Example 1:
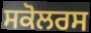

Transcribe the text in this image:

ਸਕੋਲਰਸ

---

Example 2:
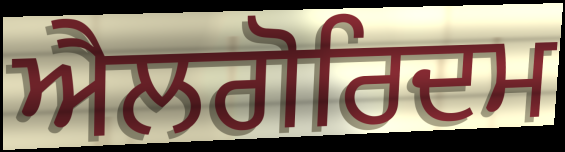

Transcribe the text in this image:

ਐਲਗੋਰਿਦਮ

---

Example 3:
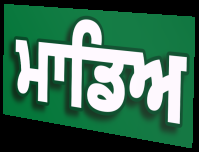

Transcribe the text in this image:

ਮਾਡਿਅ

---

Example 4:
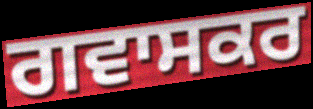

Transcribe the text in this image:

ਗਵਾਸਕਰ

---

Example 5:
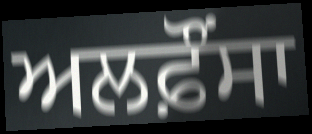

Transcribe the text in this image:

ਅਲਫ਼ੌਂਸਾ